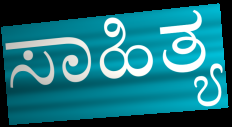
ಸಾಹಿತ್ಯ